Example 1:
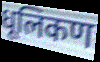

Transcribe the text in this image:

धूलिकण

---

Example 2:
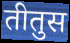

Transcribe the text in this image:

तीतुस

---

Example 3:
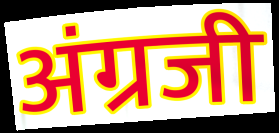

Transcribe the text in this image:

अंग्रजी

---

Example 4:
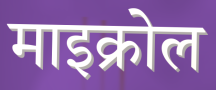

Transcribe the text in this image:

माइक्रोल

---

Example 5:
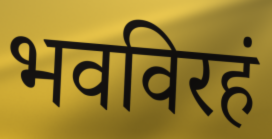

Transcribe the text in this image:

भवविरहं